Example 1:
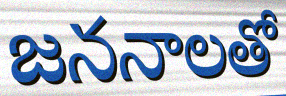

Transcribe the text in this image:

జననాలతో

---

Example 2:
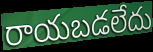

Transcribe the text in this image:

రాయబడలేదు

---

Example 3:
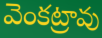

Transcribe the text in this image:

వెంకట్రావు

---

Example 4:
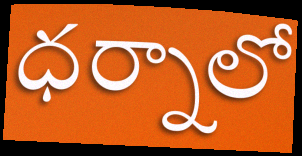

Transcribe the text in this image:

ధర్నాలో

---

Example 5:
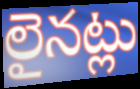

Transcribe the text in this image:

లైనట్లు